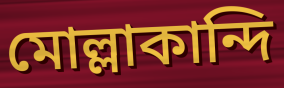
মোল্লাকান্দি